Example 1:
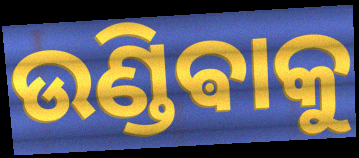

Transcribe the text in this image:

ଉଣ୍ଡିଵାକୁ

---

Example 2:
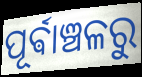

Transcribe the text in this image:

ପୂର୍ଵାଞ୍ଚଳରୁ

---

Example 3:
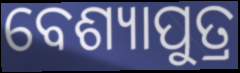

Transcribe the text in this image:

ବେଶ୍ୟାପୁତ୍ର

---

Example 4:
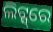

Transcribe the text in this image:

ଲିଟ୍ସ୍‌ରେ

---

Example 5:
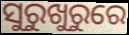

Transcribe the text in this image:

ସୁରୁଖୁରୁରେ